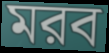
মরব